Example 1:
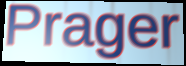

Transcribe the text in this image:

Prager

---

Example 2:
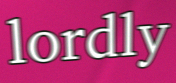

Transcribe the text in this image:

lordly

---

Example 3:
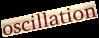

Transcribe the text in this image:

oscillation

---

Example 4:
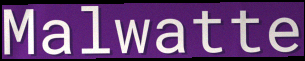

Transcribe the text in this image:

Malwatte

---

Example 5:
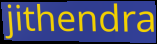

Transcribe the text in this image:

jithendra